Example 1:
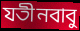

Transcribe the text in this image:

যতীনবাবু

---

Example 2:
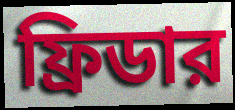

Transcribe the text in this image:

ফ্রিডার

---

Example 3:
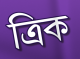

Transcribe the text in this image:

ত্রিক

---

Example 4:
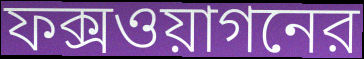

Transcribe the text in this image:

ফক্সওয়াগনের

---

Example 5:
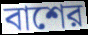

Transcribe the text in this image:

বাশের